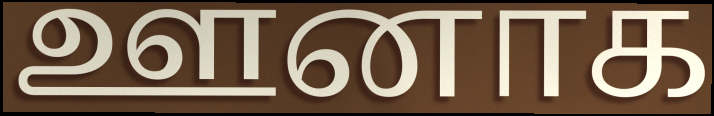
ஊனாக